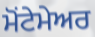
ਮੋਂਟੇਮੇਅਰ